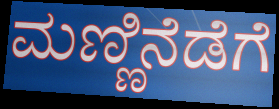
ಮಣ್ಣಿನೆಡೆಗೆ